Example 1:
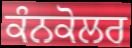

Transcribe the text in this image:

ਕੰਨਕੋਲਰ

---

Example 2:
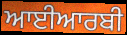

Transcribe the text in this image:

ਆਈਆਰਬੀ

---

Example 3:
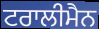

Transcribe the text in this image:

ਟਰਾਲੀਮੈਨ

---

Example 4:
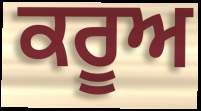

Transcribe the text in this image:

ਕਰੂਅ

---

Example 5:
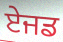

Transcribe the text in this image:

ਏਜਡ